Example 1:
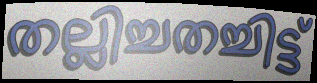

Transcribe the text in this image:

തല്ലിച്ചതച്ചിട്ട്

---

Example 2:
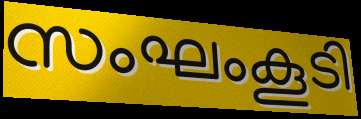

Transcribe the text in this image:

സംഘംകൂടി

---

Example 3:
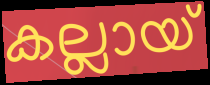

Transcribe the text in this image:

കല്ലായ്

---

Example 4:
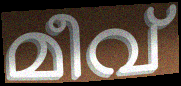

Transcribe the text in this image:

മീവ്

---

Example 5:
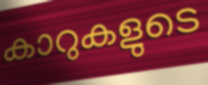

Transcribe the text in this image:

കാറുകളുടെ